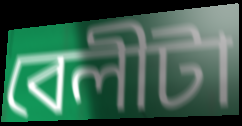
বেলীটা